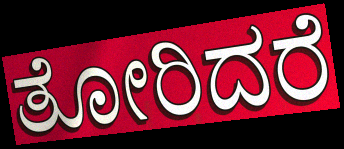
ತೋರಿದರೆ